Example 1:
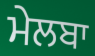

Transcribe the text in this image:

ਮੇਲਬਾ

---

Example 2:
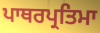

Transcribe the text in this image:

ਪਾਥਰਪ੍ਰਤਿਮਾ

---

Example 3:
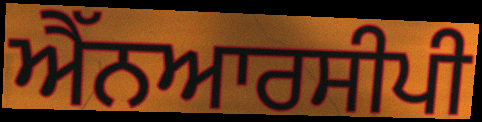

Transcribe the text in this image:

ਐੱਨਆਰਸੀਪੀ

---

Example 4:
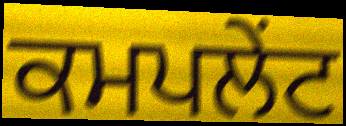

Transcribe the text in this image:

ਕਮਪਲੇਂਟ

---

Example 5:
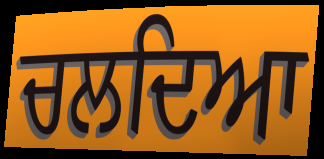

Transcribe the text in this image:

ਚਲਦਿਆ